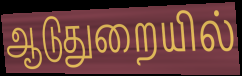
ஆடுதுறையில்